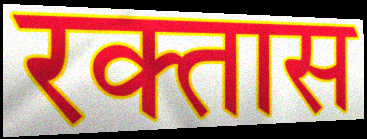
रक्तास